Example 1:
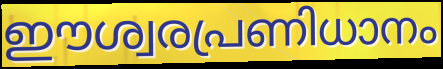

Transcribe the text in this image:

ഈശ്വരപ്രണിധാനം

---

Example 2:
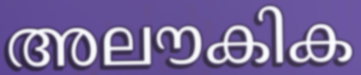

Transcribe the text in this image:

അലൗകിക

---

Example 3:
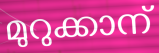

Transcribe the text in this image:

മുറുക്കാന്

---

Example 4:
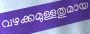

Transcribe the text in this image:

വഴക്കമുള്ളതുമായ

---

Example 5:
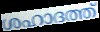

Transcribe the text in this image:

ശഹാദത്ത്